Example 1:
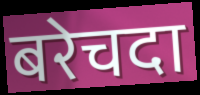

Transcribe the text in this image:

बरेचदा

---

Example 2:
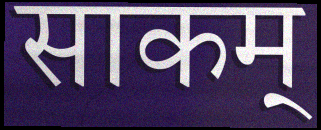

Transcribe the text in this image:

साकम्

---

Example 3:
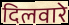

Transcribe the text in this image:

दिलवारे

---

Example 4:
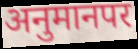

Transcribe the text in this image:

अनुमानपर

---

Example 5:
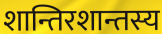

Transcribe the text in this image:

शान्तिरशान्तस्य